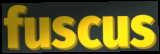
fuscus